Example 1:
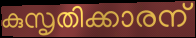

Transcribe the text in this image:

കുസൃതിക്കാരന്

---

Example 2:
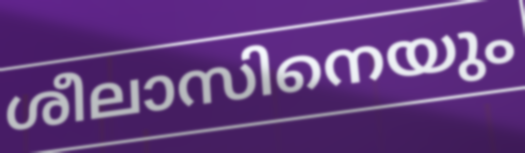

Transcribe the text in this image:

ശീലാസിനെയും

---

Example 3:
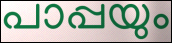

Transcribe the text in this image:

പാപ്പയും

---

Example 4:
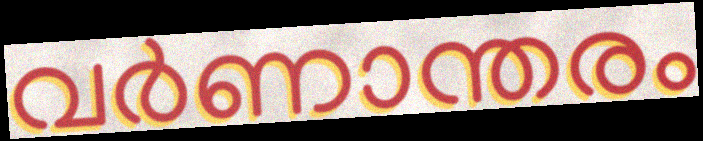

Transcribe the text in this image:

വർണാന്തരം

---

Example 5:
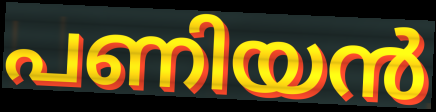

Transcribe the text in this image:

പണിയൻ